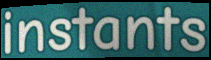
instants